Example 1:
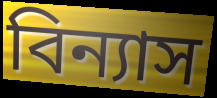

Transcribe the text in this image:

বিন্যাস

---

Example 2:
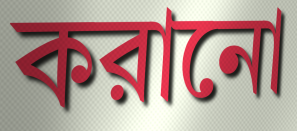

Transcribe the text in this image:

করানো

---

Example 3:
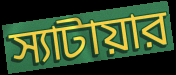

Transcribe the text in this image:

স্যাটায়ার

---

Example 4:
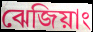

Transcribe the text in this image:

ঝেজিয়াং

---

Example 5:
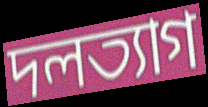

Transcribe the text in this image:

দলত্যাগ